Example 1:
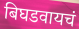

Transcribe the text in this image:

बिघडवायचं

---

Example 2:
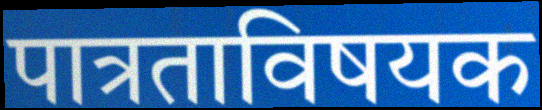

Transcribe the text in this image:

पात्रताविषयक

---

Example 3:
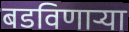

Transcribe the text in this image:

बडविणाऱ्या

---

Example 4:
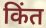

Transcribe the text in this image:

किंत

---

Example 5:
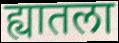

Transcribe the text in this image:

ह्यातला